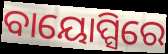
ବାୟୋପ୍ସିରେ